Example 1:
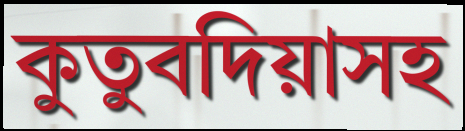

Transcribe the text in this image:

কুতুবদিয়াসহ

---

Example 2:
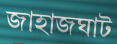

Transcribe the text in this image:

জাহাজঘাট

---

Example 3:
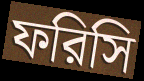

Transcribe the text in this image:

ফরিসি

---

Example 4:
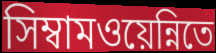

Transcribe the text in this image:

সিম্বামওয়েন্নিতে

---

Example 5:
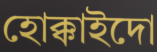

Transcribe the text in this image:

হোক্কাইদো